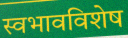
स्वभावविशेष